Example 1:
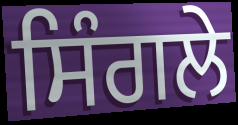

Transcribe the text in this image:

ਸਿੰਗਲੇ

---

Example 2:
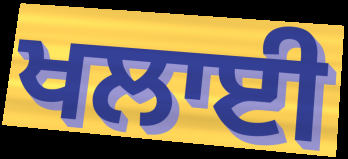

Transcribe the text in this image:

ਖਲਾਈ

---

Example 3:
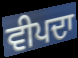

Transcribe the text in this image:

ਵੀਪਦਾ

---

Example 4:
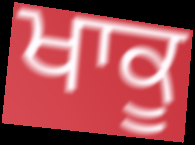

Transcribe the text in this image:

ਖਾਕੂ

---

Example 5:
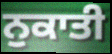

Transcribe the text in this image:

ਨੁਕਾਤੀ